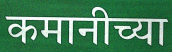
कमानीच्या